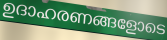
ഉദാഹരണങ്ങളോടെ